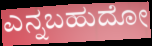
ಎನ್ನಬಹುದೋ